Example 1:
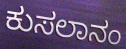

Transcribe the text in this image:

ಕುಸಲಾನಂ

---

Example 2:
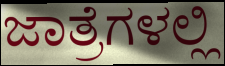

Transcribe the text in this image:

ಜಾತ್ರೆಗಳಲ್ಲಿ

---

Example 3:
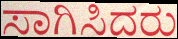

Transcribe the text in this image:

ಸಾಗಿಸಿದರು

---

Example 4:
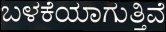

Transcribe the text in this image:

ಬಳಕೆಯಾಗುತ್ತಿವೆ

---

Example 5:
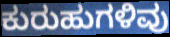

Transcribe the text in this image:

ಕುರುಹುಗಳಿವು